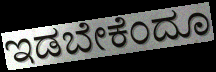
ಇಡಬೇಕೆಂದೂ